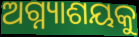
ଅଗ୍ନ୍ୟାଶୟକୁ